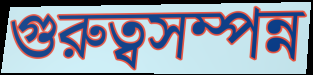
গুরুত্বসম্পন্ন